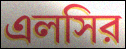
এলসির